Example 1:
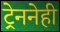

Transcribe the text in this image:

ट्रेननेही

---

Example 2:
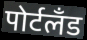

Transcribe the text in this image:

पोर्टलॅंड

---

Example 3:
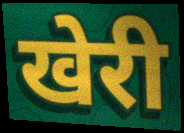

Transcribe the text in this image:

खेरी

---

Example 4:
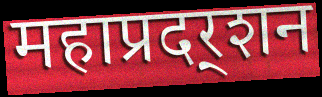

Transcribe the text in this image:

महाप्रदर्शन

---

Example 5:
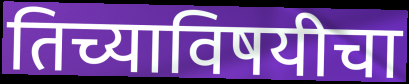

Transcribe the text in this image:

तिच्याविषयीचा